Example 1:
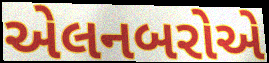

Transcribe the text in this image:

એલનબરોએ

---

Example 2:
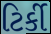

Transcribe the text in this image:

ટિર્કી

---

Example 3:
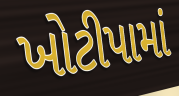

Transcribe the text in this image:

ખોટીપામાં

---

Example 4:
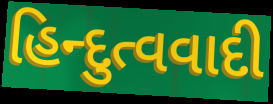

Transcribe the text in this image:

હિન્દુત્વવાદી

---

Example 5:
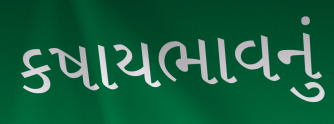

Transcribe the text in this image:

કષાયભાવનું